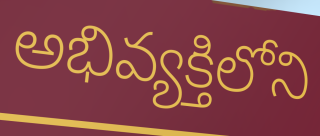
అభివ్యక్తిలోని